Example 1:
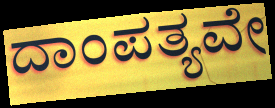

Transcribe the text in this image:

ದಾಂಪತ್ಯವೇ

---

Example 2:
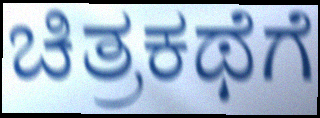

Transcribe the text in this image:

ಚಿತ್ರಕಥೆಗೆ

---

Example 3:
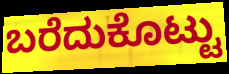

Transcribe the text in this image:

ಬರೆದುಕೊಟ್ಟು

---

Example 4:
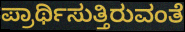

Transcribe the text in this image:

ಪ್ರಾರ್ಥಿಸುತ್ತಿರುವಂತೆ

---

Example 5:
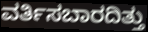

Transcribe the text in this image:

ವರ್ತಿಸಬಾರದಿತ್ತು